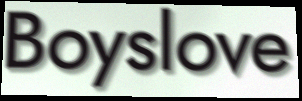
Boyslove